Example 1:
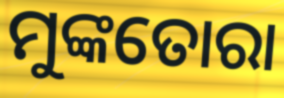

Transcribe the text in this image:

ମୁଙ୍କତୋରା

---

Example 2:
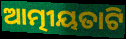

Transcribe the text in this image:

ଆତ୍ମୀୟତାଟି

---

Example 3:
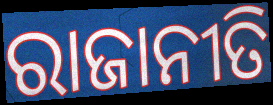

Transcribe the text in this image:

ରାଜାନୀତି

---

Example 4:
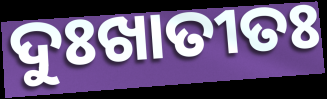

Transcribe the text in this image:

ଦୁଃଖାତୀତଃ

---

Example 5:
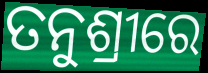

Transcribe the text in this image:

ତନୁଶ୍ରୀରେ